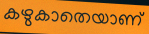
കഴുകാതെയാണ്